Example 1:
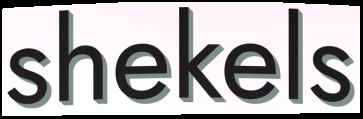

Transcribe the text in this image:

shekels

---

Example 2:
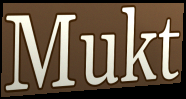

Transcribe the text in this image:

Mukt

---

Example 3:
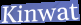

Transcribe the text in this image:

Kinwat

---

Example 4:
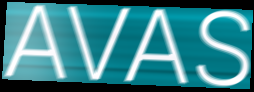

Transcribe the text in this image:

AVAS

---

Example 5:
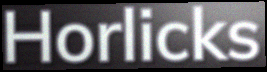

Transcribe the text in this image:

Horlicks